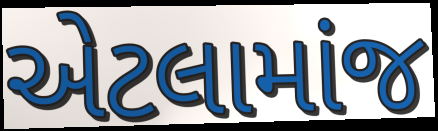
એટલામાંજ